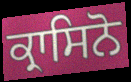
ਕ੍ਰਾਸਿਨੋ